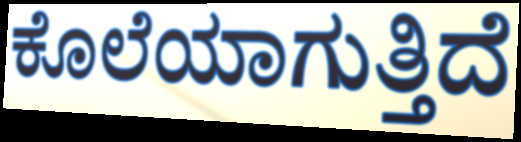
ಕೊಲೆಯಾಗುತ್ತಿದೆ